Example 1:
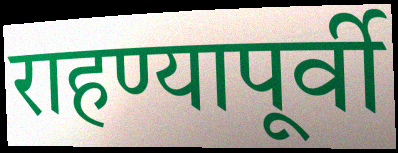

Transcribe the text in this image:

राहण्यापूर्वी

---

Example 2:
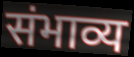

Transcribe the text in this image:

संभाव्य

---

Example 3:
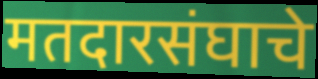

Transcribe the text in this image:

मतदारसंघाचे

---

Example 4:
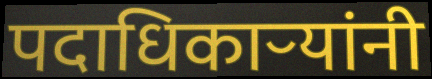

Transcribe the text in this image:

पदाधिकाऱ्यांनी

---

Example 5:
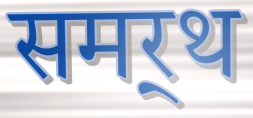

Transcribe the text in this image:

समर्थ